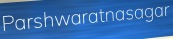
Parshwaratnasagar